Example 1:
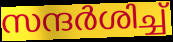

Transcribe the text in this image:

സന്ദർശിച്ച്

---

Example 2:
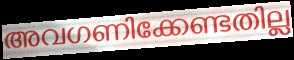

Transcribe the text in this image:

അവഗണിക്കേണ്ടതില്ല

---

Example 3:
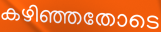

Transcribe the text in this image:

കഴിഞ്ഞതോടെ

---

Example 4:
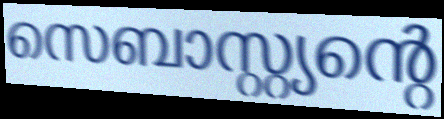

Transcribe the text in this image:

സെബാസ്റ്റ്യന്റെ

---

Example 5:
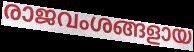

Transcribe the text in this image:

രാജവംശങ്ങളായ